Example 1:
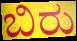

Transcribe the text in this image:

ಬಿರು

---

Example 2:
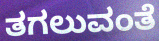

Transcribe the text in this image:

ತಗಲುವಂತೆ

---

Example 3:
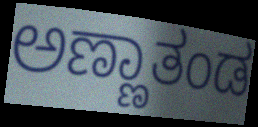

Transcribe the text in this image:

ಅಣ್ಣಾತಂಡ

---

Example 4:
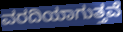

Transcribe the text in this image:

ವರದಿಯಾಗುತ್ತವೆ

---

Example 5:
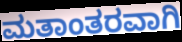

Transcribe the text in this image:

ಮತಾಂತರವಾಗಿ